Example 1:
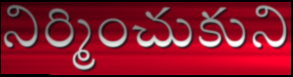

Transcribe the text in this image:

నిర్మించుకుని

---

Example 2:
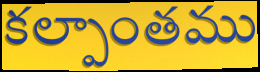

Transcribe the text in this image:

కల్పాంతము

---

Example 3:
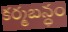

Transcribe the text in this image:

కర్మబన్ధం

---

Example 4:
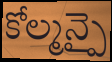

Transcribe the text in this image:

కోల్మన్పై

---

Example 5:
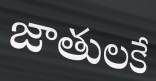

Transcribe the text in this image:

జాతులకే